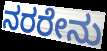
ನರರೇನು